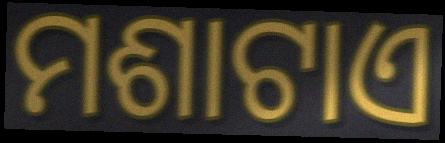
ମଶାଟାଏ